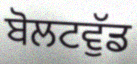
ਬੋਲਟਵੁੱਡ